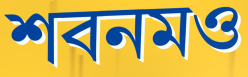
শবনমও